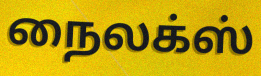
நைலக்ஸ்